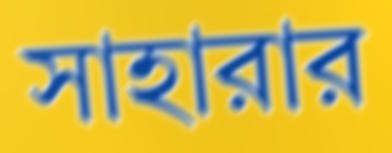
সাহারার